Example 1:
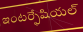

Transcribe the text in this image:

ఇంటర్ఫేషియల్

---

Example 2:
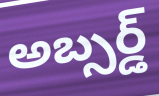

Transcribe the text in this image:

అబ్సర్డ్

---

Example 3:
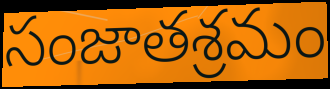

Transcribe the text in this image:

సంజాతశ్రమం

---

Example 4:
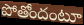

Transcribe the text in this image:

పోతోందంటూ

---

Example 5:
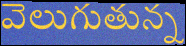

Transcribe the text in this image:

వెలుగుతున్న